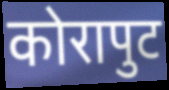
कोरापुट